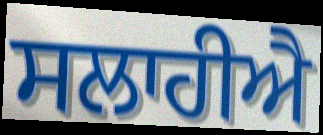
ਸਲਾਹੀਐ